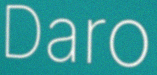
Daro